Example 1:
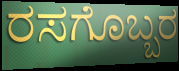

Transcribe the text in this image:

ರಸಗೊಬ್ಬರ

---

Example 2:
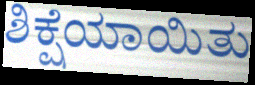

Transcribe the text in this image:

ಶಿಕ್ಷೆಯಾಯಿತು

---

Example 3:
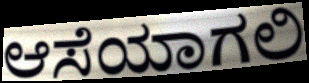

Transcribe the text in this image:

ಆಸೆಯಾಗಲಿ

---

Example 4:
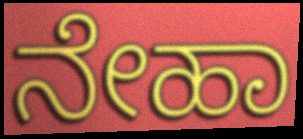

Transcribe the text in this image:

ನೇಹಾ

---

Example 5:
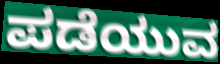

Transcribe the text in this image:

ಪಡೆಯುವ